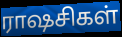
ராஷசிகள்